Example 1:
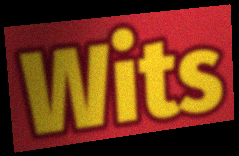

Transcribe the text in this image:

Wits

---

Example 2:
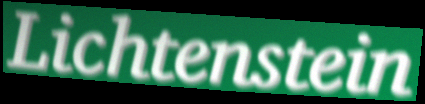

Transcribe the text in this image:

Lichtenstein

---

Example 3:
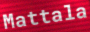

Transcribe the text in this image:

Mattala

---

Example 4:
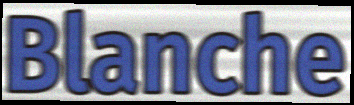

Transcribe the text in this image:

Blanche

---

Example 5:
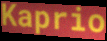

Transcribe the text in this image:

Kaprio